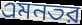
এমনতর